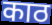
काठ